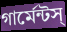
গার্মেন্টস্